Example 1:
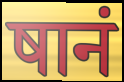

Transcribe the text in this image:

षानं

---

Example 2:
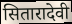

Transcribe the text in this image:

सितारादेवी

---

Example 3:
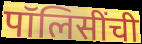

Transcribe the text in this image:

पॉलिसींची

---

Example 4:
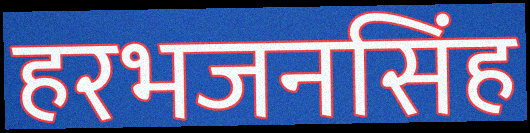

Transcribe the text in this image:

हरभजनसिंह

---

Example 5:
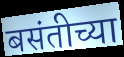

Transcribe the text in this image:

बसंतीच्या